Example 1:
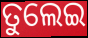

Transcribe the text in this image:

ତୁଲେଇ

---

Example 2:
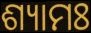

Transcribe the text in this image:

ଶ୍ୟାମଃ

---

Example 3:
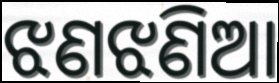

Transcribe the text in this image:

ଝଣଝଣିଆ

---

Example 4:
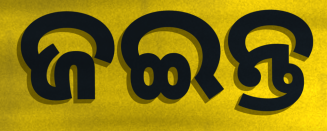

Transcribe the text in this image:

ଜଇନ୍ତ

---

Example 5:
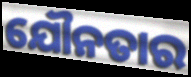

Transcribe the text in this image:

ଯୌନତାର